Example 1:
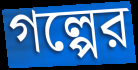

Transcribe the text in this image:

গল্পের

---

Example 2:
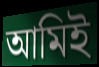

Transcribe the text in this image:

আমিই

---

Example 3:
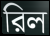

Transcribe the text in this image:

রিল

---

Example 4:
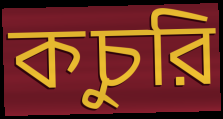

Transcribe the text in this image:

কচুরি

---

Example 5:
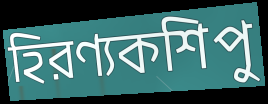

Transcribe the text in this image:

হিরণ্যকশিপু